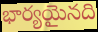
భార్యయైనది